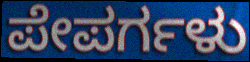
ಪೇಪರ್ಗಳು